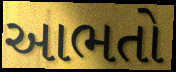
આભતો